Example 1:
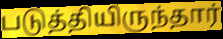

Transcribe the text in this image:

படுத்தியிருந்தார்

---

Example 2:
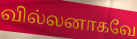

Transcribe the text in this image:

வில்லனாகவே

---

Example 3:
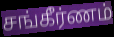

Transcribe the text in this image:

சங்கீர்ணம்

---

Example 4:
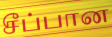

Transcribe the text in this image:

சீப்பான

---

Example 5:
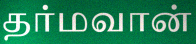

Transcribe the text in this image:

தர்மவான்